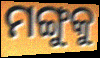
ମଙ୍ଗୁକୁ